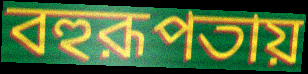
বহুরূপতায়